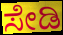
ಸೇಡಿ